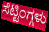
ಸೆಟ್ಟಿಂಗ್ಗಳು